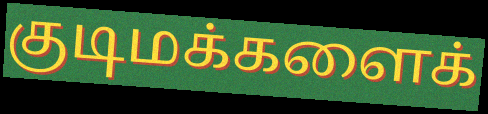
குடிமக்களைக்